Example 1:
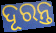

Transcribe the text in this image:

ଦୂରନ୍ତ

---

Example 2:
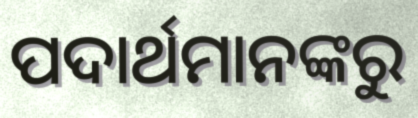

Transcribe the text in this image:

ପଦାର୍ଥମାନଙ୍କରୁ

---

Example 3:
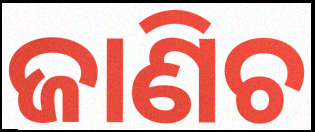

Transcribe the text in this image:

ଜାଣିଚ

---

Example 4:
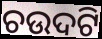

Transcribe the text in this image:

ଚଉଦଟି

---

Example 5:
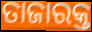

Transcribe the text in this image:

ତାଜାରକ୍ତ